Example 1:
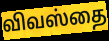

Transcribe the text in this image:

விவஸ்தை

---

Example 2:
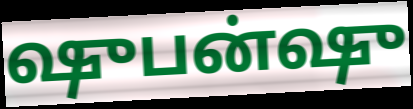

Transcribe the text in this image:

ஷுபன்ஷு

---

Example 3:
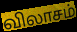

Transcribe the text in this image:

விலாசம்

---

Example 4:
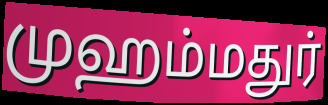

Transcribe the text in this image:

முஹம்மதுர்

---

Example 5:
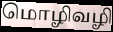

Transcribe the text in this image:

மொழிவழி